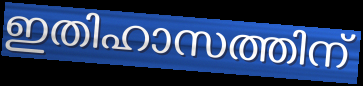
ഇതിഹാസത്തിന്